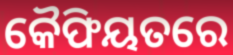
କୈଫିୟତରେ